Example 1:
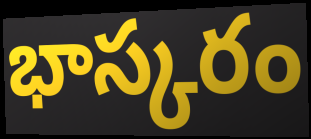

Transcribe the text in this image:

భాస్కరం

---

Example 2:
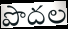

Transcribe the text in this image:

పొదల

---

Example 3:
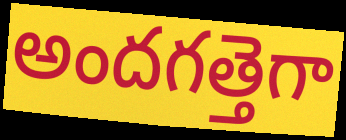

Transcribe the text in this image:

అందగత్తెగా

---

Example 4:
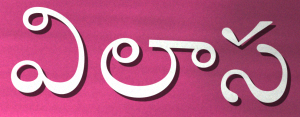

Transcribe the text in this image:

విలాస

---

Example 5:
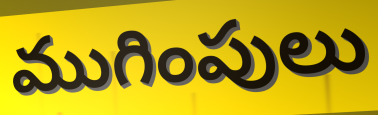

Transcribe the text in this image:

ముగింపులు